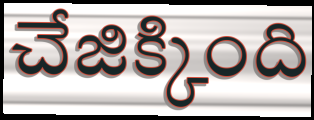
చేజిక్కింది